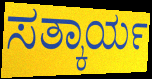
ಸತ್ಕಾರ್ಯ